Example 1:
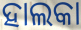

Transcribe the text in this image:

ହାଲକା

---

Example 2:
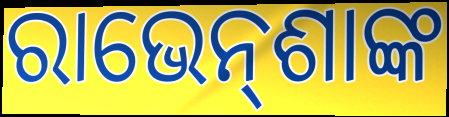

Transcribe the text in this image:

ରାଭେନ୍‌ଶାଙ୍କ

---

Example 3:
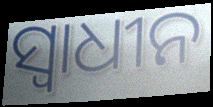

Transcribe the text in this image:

ସ୍ଵାଧୀନ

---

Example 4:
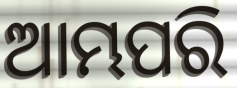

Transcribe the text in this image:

ଆମ୍ଭପରି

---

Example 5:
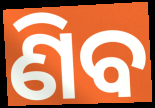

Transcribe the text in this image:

ଣିବ